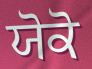
ਯੋਕੋ